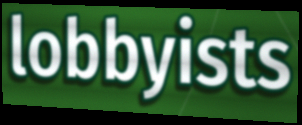
lobbyists